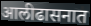
आलीढासनात